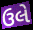
ઉલે